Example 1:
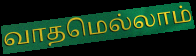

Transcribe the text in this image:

வாதமெல்லாம்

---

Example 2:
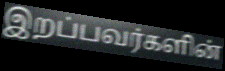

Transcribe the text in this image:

இறப்பவர்களின்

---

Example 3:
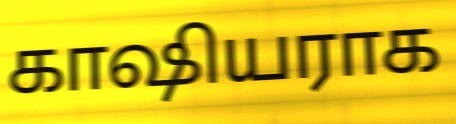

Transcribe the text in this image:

காஷியராக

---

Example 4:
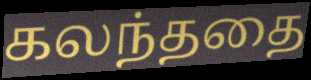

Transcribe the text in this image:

கலந்ததை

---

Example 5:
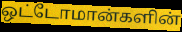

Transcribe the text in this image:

ஒட்டோமான்களின்